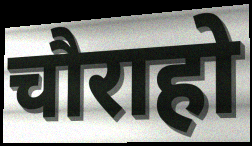
चौराहो